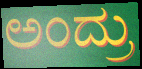
ಅಂದ್ರು